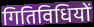
गितिविधियों